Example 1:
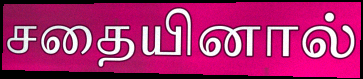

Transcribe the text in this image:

சதையினால்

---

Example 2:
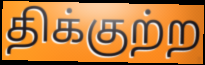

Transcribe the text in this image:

திக்குற்ற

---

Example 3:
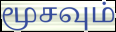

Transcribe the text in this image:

மூசவும்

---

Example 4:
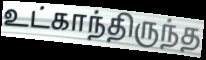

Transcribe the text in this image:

உட்காந்திருந்த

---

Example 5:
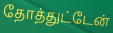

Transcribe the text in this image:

தோத்துட்டேன்